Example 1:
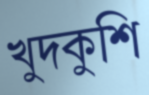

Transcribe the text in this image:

খুদকুশি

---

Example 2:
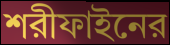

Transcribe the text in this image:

শরীফাইনের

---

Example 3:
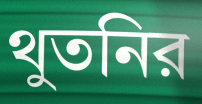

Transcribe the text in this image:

থুতনির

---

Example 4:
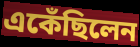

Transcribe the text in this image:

একেঁছিলেন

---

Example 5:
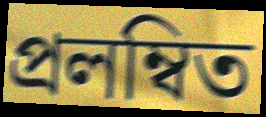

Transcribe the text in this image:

প্রলম্বিত